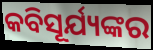
କବିସୂର୍ଯ୍ୟଙ୍କର